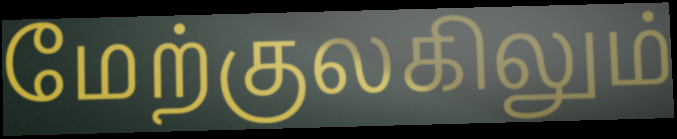
மேற்குலகிலும்